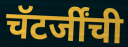
चॅटर्जींची